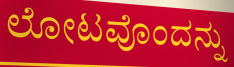
ಲೋಟವೊಂದನ್ನು